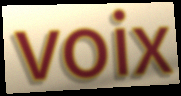
voix